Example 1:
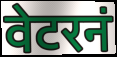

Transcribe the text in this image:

वेटरनं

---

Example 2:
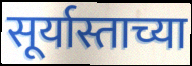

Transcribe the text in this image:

सूर्यास्ताच्या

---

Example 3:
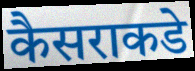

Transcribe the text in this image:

कैसराकडे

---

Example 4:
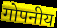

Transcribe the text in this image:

गोपनीय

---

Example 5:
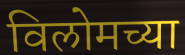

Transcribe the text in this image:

विलोमच्या